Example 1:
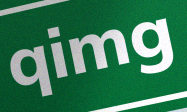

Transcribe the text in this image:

qimg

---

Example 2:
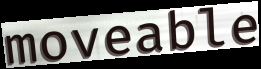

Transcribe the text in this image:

moveable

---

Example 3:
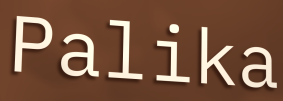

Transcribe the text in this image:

Palika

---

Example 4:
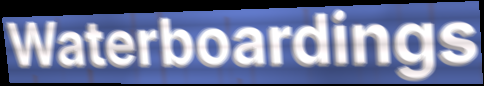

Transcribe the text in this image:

Waterboardings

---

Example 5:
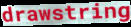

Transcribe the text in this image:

drawstring